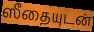
ஸீதையுடன்